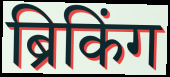
ब्रिकिंग